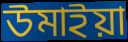
উমাইয়া